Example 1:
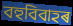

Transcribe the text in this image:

বহুবিবাহৰ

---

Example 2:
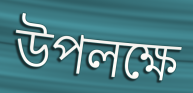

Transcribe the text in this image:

উপলক্ষে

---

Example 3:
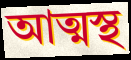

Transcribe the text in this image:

আত্মস্থ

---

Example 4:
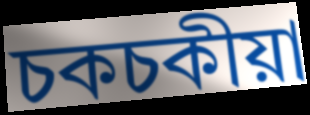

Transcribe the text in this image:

চকচকীয়া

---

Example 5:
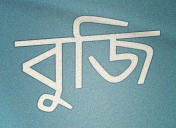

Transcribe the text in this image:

বুজি